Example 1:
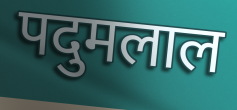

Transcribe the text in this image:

पदुमलाल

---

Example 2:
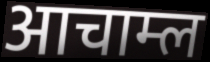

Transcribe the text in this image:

आचाम्ल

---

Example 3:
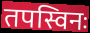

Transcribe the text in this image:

तपस्विनः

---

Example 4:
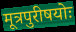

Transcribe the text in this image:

मूत्रपुरीषयोः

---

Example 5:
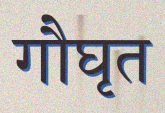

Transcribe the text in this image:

गौघृत